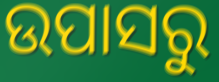
ଉପାସରୁ